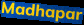
Madhapar